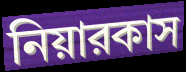
নিয়ারকাস